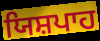
ਯਿਸ਼ਪਾਹ